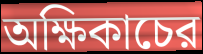
অক্ষিকাচের